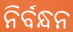
ନିର୍ବନ୍ଧନ